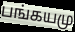
பங்கயமு